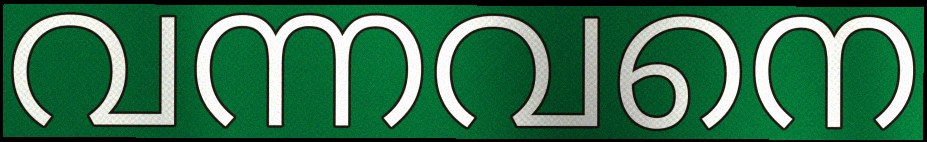
വന്നവനെ